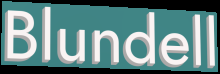
Blundell